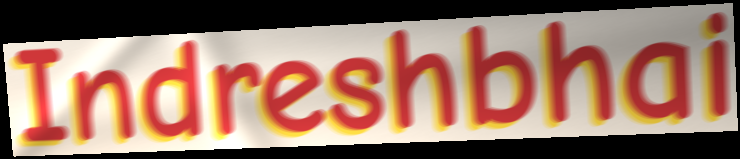
Indreshbhai